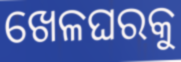
ଖେଳଘରକୁ